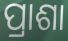
ପ୍ରାଶା